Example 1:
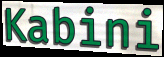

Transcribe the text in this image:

Kabini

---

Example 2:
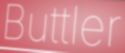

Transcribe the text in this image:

Buttler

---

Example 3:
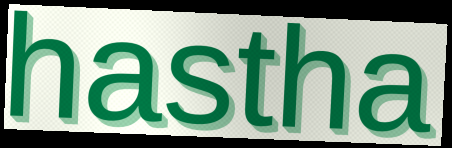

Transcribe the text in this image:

hastha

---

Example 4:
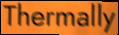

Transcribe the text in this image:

Thermally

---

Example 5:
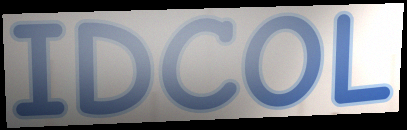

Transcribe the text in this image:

IDCOL